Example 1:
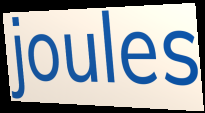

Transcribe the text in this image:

joules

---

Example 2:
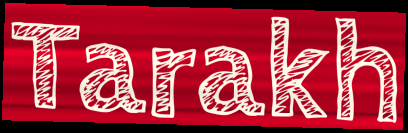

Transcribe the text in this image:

Tarakh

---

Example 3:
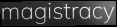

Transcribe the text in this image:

magistracy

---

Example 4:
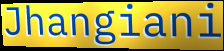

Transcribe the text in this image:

Jhangiani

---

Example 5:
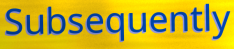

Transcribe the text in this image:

Subsequently